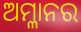
ଅମ୍ଳାନର